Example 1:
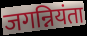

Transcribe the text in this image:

जगन्नियंता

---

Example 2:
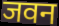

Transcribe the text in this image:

जवन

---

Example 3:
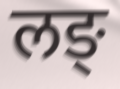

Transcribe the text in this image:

लङ्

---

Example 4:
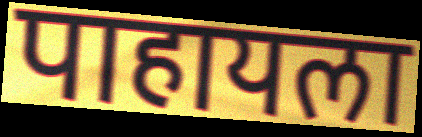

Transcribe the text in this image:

पाहायला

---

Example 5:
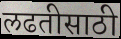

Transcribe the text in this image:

लढतीसाठी